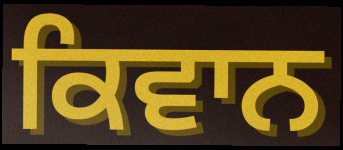
ਕਿਵਾਨ